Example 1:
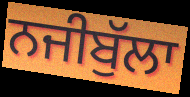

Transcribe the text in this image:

ਨਜੀਬੁੱਲਾ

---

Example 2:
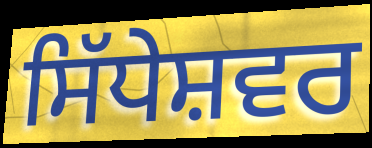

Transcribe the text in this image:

ਸਿੱਧੇਸ਼ਵਰ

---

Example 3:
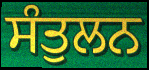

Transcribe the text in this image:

ਸੰਤੁਲਨ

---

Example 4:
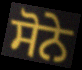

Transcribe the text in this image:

ਸੋਨੇ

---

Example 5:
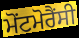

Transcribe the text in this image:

ਮੋਂਟਮੋਰੈਂਸੀ